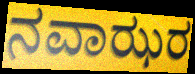
ನವಾಝರ